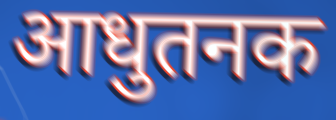
आधुतनक